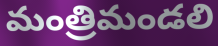
మంత్రిమండలి